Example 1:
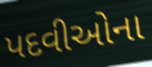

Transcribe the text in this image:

પદવીઓના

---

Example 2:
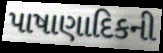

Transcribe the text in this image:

પાષાણાદિકની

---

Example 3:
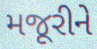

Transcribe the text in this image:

મજૂરીને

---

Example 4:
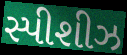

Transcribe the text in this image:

સ્પીશીઝ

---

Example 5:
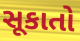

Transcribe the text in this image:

સૂકાતો